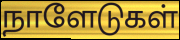
நாளேடுகள்